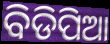
ବିଡିପିଆ